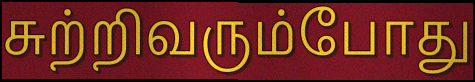
சுற்றிவரும்போது